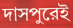
দাসপুরেই